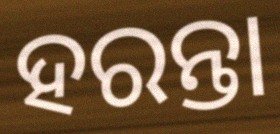
ହରନ୍ତା